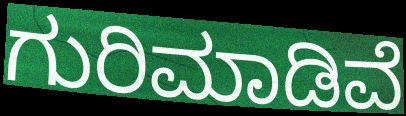
ಗುರಿಮಾಡಿವೆ